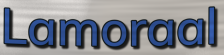
Lamoraal